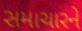
સમાચારને